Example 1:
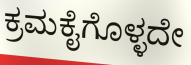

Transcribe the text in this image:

ಕ್ರಮಕೈಗೊಳ್ಳದೇ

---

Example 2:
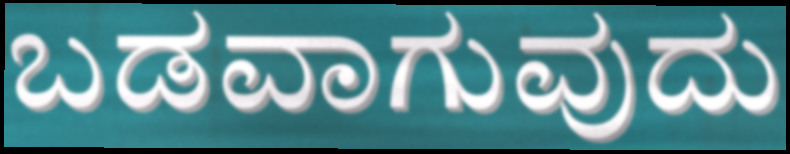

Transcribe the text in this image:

ಬಡವಾಗುವುದು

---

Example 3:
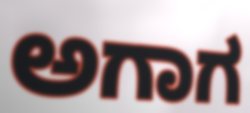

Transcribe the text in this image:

ಅಗಾಗ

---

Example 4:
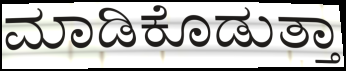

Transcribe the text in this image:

ಮಾಡಿಕೊಡುತ್ತಾ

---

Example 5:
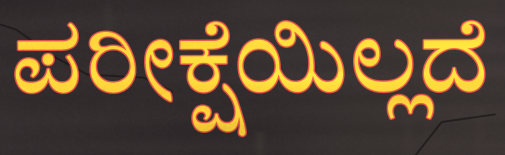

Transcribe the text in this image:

ಪರೀಕ್ಷೆಯಿಲ್ಲದೆ